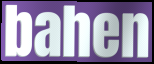
bahen